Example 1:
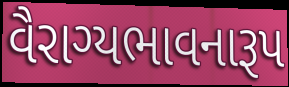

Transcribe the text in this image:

વૈરાગ્યભાવનારૂપ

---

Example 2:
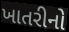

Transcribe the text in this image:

ખાતરીનો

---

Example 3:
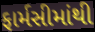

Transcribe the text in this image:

ફાર્મસીમાંથી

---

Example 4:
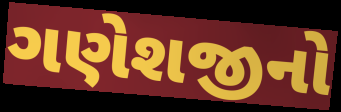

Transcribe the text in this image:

ગણેશજીનો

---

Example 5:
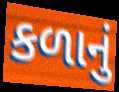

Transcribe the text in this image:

કળાનું